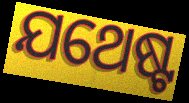
ଯଥେଷ୍ଟ